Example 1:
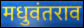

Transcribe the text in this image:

मधुवंतराव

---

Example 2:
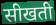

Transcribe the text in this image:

सीखती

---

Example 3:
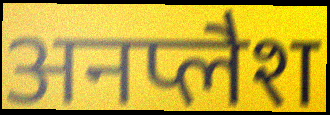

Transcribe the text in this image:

अनप्लैश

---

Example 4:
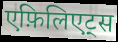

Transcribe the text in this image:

एफ़िलिएट्स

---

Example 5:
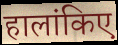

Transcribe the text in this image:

हालांकिए